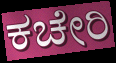
ಕಚೇರಿ